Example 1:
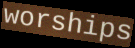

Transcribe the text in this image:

worships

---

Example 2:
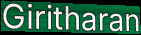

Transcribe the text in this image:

Giritharan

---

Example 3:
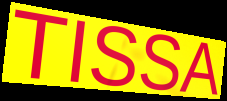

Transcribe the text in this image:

TISSA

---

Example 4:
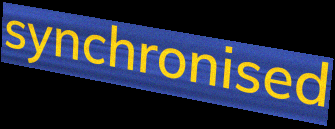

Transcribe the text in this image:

synchronised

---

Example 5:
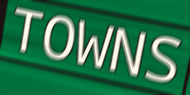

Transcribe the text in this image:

TOWNS